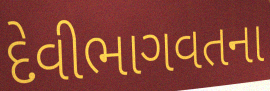
દેવીભાગવતના